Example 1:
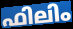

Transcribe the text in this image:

ഫിലിം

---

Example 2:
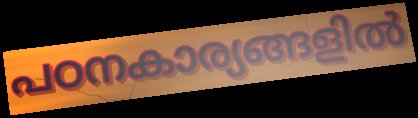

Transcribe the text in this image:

പഠനകാര്യങ്ങളിൽ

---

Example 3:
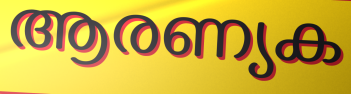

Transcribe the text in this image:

ആരണ്യക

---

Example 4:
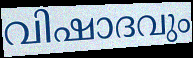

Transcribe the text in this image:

വിഷാദവും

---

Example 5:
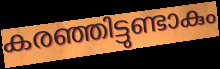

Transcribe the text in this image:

കരഞ്ഞിട്ടുണ്ടാകും